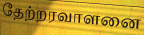
தேற்றரவாளனை